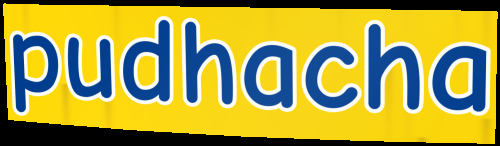
pudhacha